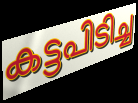
കട്ടപിടിച്ച